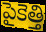
పైకెత్తి